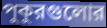
পুকুরগুলোর